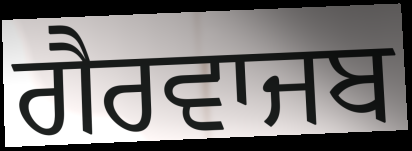
ਗੈਰਵਾਜਬ